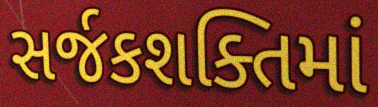
સર્જકશક્તિમાં